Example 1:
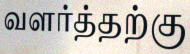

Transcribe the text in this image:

வளர்த்தற்கு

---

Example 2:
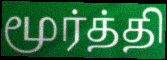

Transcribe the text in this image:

மூர்த்தி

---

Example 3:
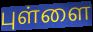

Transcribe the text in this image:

புள்ளை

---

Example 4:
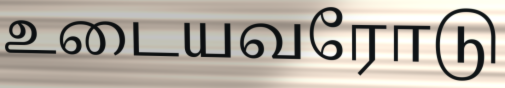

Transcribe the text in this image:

உடையவரோடு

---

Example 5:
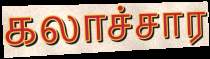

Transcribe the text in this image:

கலாச்சார